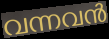
വന്നവൻ